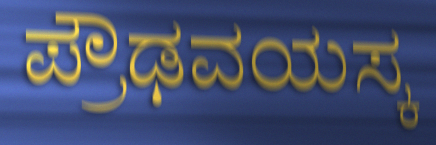
ಪ್ರೌಢವಯಸ್ಕ